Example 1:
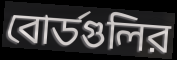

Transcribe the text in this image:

বোর্ডগুলির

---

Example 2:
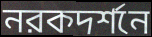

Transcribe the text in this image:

নরকদর্শনে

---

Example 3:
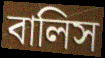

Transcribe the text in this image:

বালিস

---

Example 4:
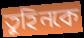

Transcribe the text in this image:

তুহিনকে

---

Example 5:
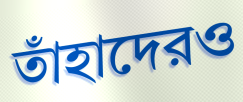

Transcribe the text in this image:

তাঁহাদেরও